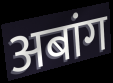
अबांग